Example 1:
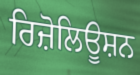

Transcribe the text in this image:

ਰਿਜ਼ੋਲਿਊਸ਼ਨ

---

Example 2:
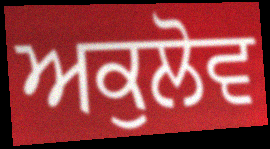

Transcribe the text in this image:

ਅਕੁਲੋਵ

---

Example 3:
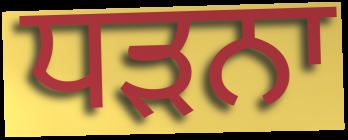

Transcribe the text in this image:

ਧੜਨਾ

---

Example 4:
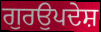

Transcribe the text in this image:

ਗੁਰਉਪਦੇਸ਼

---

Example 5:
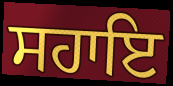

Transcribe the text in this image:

ਸਹਾਇ